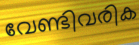
വേണ്ടിവരിക